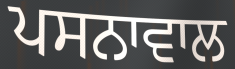
ਪਸਨਾਵਾਲ